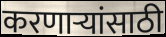
करणार्‍यांसाठी